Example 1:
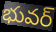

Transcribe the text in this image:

భువర్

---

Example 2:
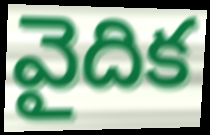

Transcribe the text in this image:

వైదిక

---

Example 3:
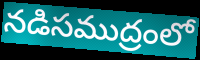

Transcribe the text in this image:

నడిసముద్రంలో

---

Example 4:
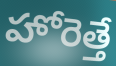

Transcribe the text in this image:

హోరెత్తే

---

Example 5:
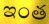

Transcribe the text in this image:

ఇంత